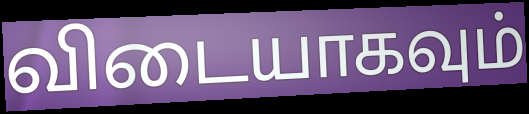
விடையாகவும்